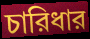
চারিধার